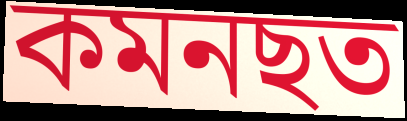
কমনছত